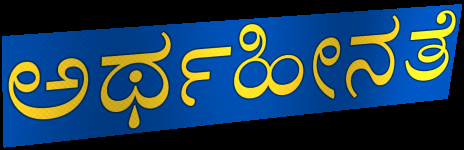
ಅರ್ಥಹೀನತೆ